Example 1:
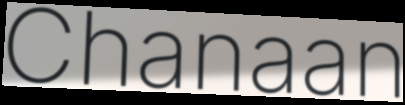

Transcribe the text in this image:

Chanaan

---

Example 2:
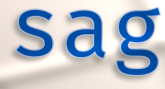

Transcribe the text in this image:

sag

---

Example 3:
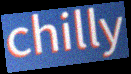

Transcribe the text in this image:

chilly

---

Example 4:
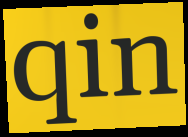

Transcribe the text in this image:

qin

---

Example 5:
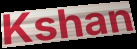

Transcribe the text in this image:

Kshan